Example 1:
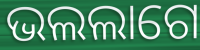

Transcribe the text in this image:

ଭଲଲାଗେ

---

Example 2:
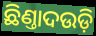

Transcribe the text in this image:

ଛିଣ୍ତାଦଉଡ଼ି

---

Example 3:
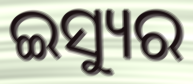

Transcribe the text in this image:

ଇସ୍ୟୁର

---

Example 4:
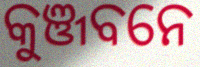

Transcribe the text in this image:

କୁଞ୍ଜବନେ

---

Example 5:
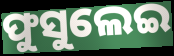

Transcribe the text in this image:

ଫୁସୁଲେଇ